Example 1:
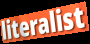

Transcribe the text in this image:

literalist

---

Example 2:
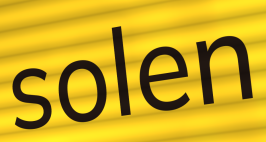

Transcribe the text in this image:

solen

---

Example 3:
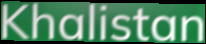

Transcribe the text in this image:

Khalistan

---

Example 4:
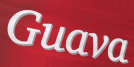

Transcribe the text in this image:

Guava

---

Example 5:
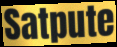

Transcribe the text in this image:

Satpute